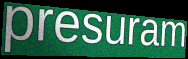
presuram